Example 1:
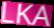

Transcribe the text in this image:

LKA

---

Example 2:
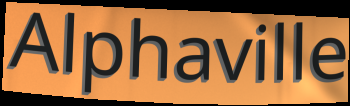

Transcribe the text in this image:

Alphaville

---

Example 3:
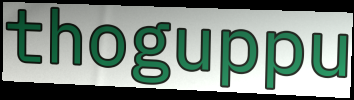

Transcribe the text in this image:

thoguppu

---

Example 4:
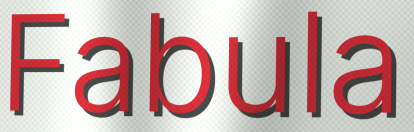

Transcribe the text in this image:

Fabula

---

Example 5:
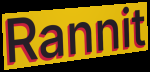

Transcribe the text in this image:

Rannit